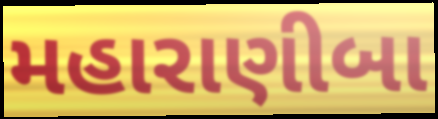
મહારાણીબા